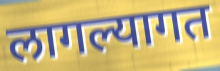
लागल्यागत